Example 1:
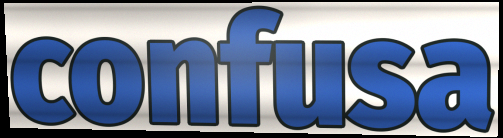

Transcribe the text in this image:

confusa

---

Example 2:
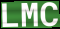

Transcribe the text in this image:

LMC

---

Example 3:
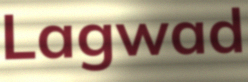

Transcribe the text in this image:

Lagwad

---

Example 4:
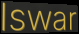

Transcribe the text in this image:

Iswar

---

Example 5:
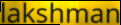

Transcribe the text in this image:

lakshman